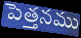
పెత్తనము